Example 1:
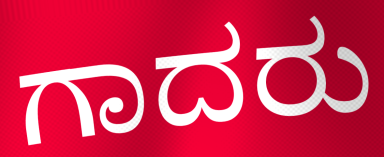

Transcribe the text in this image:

ಗಾದರು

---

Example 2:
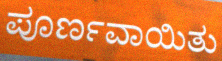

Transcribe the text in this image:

ಪೂರ್ಣವಾಯಿತು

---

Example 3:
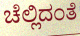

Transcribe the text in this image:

ಚೆಲ್ಲಿದಂತೆ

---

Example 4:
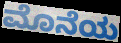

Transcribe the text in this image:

ಮೊನೆಯ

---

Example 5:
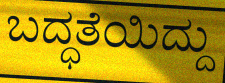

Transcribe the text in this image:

ಬದ್ಧತೆಯಿದ್ದು